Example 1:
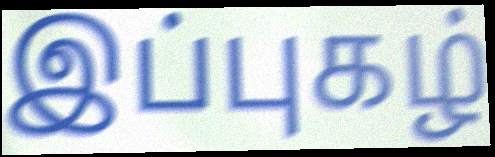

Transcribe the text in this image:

இப்புகழ்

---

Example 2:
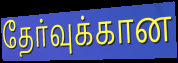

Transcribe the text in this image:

தேர்வுக்கான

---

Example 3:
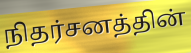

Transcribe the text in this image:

நிதர்சனத்தின்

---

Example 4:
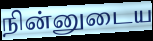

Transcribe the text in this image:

நின்னுடைய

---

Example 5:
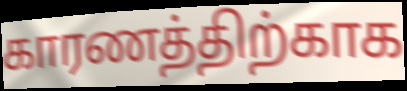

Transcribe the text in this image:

காரணத்திற்காக